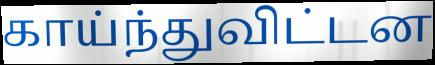
காய்ந்துவிட்டன